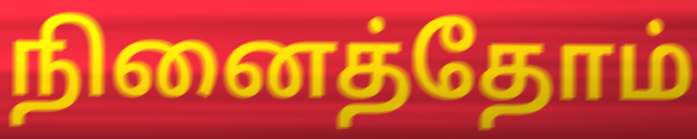
நினைத்தோம்